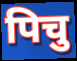
पिचु